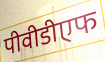
पीवीडीएफ